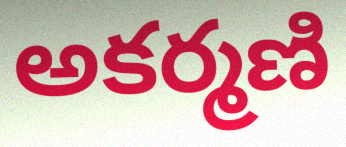
అకర్మణి